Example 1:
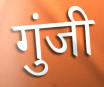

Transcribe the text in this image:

गुंजी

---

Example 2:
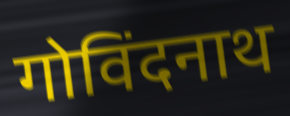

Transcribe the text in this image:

गोविंदनाथ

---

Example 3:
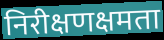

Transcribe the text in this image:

निरीक्षणक्षमता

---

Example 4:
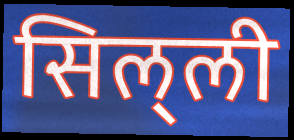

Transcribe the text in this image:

सिल्ली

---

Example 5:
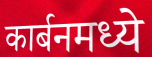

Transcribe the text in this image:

कार्बनमध्ये